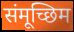
संमूच्छिम